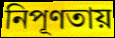
নিপূণতায়